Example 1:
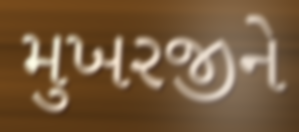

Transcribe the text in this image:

મુખરજીને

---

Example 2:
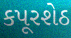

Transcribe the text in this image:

કપૂરશેઠ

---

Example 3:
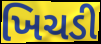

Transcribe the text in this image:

ખિચડી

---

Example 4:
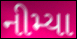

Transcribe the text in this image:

નીમ્યા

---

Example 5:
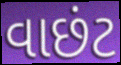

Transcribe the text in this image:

વાછંટ